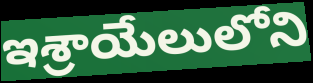
ఇశ్రాయేలులోని